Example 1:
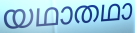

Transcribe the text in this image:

യഥാതഥാ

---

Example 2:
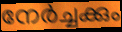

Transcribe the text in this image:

നേർച്ചക്കും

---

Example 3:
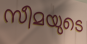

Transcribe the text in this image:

സീമയുടെ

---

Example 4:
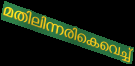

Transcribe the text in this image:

മതിലിന്നരികെവെച്ച്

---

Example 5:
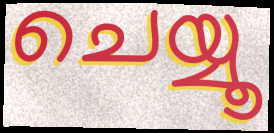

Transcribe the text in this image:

ചെയ്യൂ